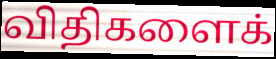
விதிகளைக்